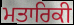
ਮਤਾਰਿਕੀ